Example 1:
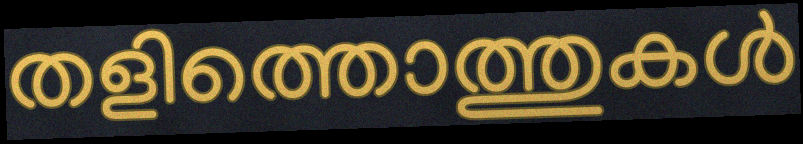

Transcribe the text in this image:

തളിത്തൊത്തുകൾ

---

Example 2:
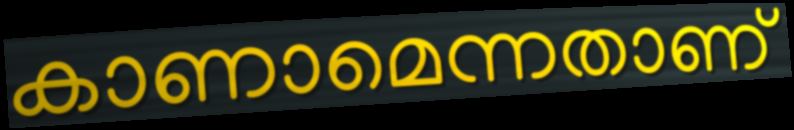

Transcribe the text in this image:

കാണാമെന്നതാണ്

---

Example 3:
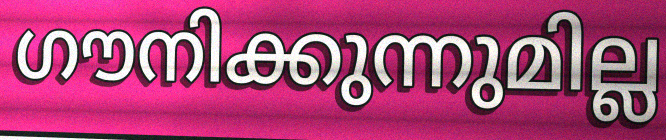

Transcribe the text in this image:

ഗൗനിക്കുന്നുമില്ല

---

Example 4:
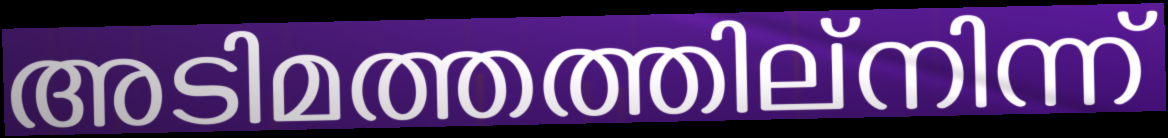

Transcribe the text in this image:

അടിമത്തത്തില്നിന്ന്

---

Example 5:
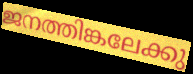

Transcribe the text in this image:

ജനത്തിങ്കലേക്കു